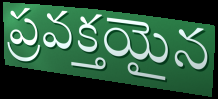
ప్రవక్తయైన